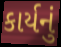
કાર્યનું